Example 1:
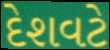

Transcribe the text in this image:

દેશવટે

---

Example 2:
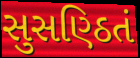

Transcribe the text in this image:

સુસણ્ઠિતં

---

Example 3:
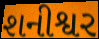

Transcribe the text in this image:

શનીશ્વર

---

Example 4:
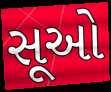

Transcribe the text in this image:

સૂઓ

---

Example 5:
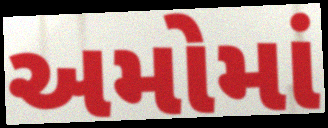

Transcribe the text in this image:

અમોમાં